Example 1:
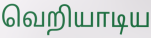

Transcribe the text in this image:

வெறியாடிய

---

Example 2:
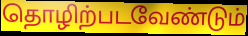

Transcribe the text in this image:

தொழிற்படவேண்டும்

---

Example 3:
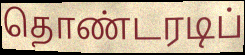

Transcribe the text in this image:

தொண்டரடிப்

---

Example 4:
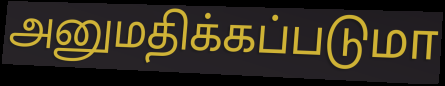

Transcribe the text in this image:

அனுமதிக்கப்படுமா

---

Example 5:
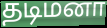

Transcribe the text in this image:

தடிமனா